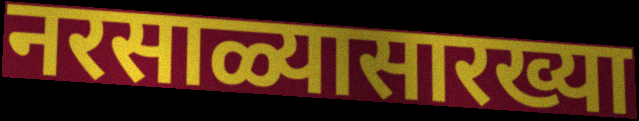
नरसाळ्यासारख्या